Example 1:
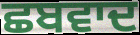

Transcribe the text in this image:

ਛਬਵਾਦ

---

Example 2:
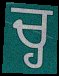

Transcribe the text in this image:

ਚ੍ਹ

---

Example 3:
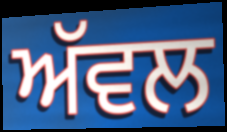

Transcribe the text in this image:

ਅੱਵਲ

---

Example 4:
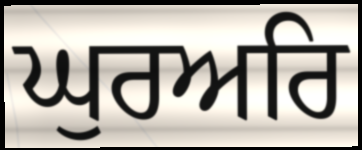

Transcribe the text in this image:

ਘੁਰਅਰਿ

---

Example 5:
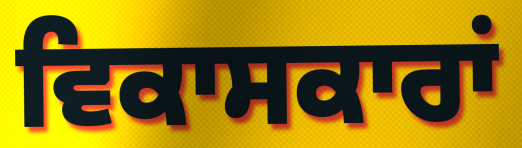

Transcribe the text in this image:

ਵਿਕਾਸਕਾਰਾਂ